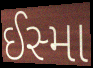
ઈસ્મા